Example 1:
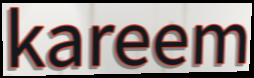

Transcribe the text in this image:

kareem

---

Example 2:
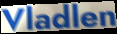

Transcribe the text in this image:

Vladlen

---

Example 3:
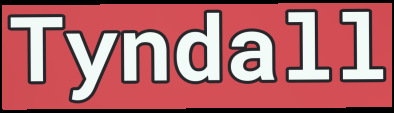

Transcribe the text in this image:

Tyndall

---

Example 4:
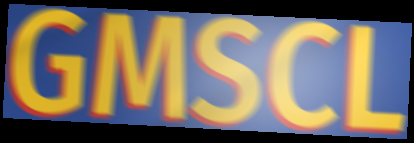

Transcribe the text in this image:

GMSCL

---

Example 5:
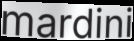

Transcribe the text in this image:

mardini